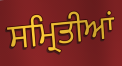
ਸਮ੍ਰਿਤੀਆਂ